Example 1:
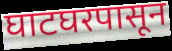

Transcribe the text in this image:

घाटघरपासून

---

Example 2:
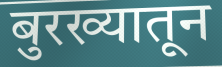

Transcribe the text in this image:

बुरख्यातून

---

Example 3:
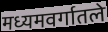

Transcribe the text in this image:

मध्यमवर्गातले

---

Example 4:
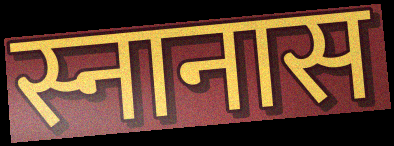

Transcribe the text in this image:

स्नानास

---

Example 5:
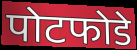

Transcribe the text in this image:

पोटफोडे